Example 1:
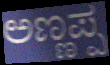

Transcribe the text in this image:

ಅಣ್ಣಪ್ಪ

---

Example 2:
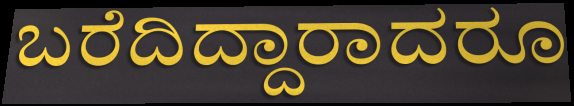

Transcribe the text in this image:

ಬರೆದಿದ್ದಾರಾದರೂ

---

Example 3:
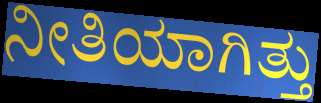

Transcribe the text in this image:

ನೀತಿಯಾಗಿತ್ತು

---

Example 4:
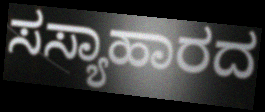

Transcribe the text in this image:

ಸಸ್ಯಾಹಾರದ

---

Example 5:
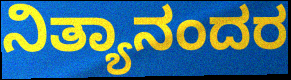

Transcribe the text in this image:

ನಿತ್ಯಾನಂದರ